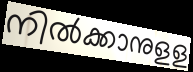
നിൽക്കാനുളള